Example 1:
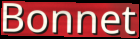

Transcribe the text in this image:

Bonnet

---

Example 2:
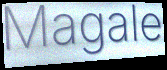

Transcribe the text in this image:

Magale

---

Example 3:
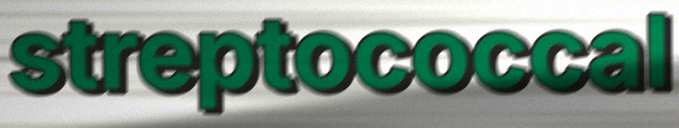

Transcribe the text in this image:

streptococcal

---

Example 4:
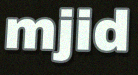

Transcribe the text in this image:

mjid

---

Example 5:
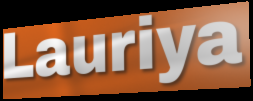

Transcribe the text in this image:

Lauriya